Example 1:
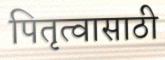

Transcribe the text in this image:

पितृत्वासाठी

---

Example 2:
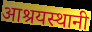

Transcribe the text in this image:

आश्रयस्थानी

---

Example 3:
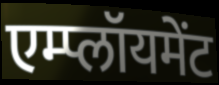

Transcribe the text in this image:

एम्प्लॉयमेंट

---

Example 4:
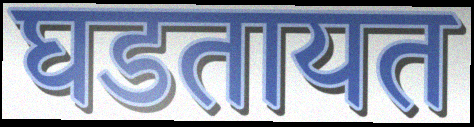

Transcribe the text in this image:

घडतायत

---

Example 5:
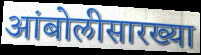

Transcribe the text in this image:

आंबोलीसारख्या